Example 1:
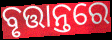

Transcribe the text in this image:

ବୃତ୍ତାନ୍ତରେ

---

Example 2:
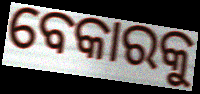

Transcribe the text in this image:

ବେକାରକୁ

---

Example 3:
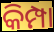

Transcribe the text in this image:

କିମ୍ପା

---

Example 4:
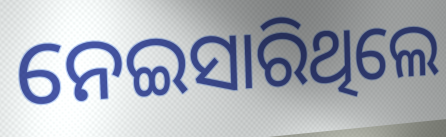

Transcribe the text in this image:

ନେଇସାରିଥିଲେ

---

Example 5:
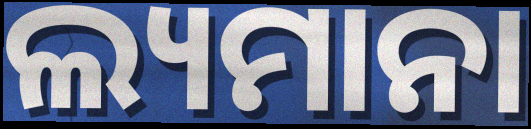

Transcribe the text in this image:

ଲ୍ୟମାନା